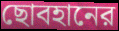
ছোবহানের